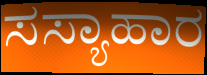
ಸಸ್ಯಾಹಾರ